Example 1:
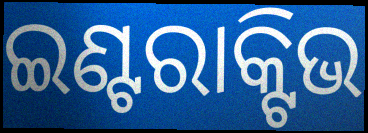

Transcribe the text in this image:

ଇଣ୍ଟରାକ୍ଟିଭ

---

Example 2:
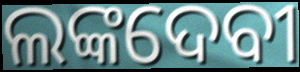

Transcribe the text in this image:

ଲଙ୍କଦେବୀ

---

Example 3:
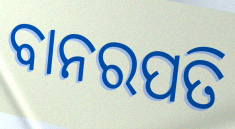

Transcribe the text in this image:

ବାନରପତି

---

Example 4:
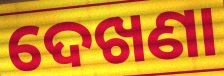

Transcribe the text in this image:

ଦେଖଣା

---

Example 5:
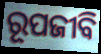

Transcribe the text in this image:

ରୂପଜୀବି